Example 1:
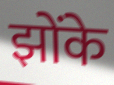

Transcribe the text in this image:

झोंके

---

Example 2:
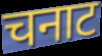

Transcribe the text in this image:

चनाट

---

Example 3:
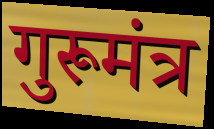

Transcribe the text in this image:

गुरूमंत्र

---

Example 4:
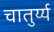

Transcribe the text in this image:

चातुर्य्य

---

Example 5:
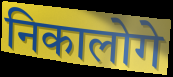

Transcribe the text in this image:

निकालोगे